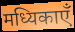
मध्यिकाएँ